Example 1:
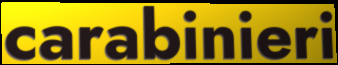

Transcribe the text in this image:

carabinieri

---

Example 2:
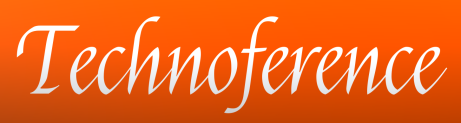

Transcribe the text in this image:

Technoference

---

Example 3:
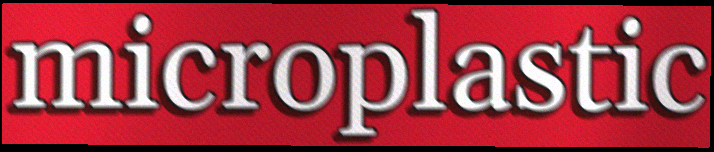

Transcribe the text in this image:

microplastic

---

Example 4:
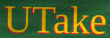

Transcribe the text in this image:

UTake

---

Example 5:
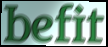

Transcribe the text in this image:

befit